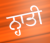
ਨ੍ਹਾਤੀ